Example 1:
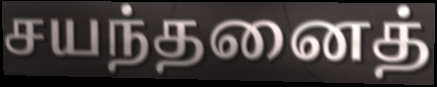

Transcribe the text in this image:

சயந்தனைத்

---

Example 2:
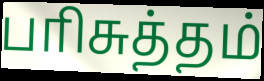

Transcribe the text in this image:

பரிசுத்தம்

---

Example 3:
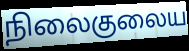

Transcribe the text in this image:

நிலைகுலைய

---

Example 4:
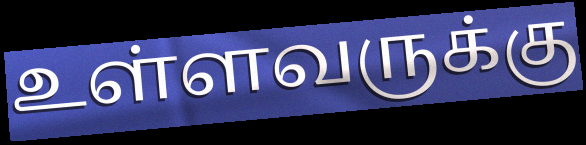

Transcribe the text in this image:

உள்ளவருக்கு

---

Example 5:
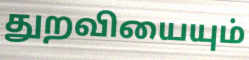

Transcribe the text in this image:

துறவியையும்